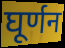
घूर्णन